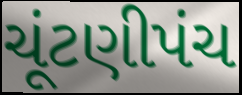
ચૂંટણીપંચ